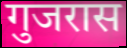
गुजरास